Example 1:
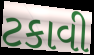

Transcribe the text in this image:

ટકાવી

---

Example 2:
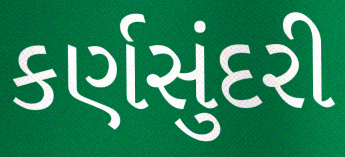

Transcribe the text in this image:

કર્ણસુંદરી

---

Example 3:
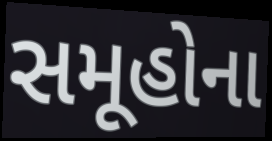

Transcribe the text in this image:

સમૂહોના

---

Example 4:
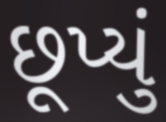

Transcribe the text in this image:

છૂપ્યું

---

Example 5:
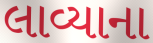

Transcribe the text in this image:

લાવ્યાના